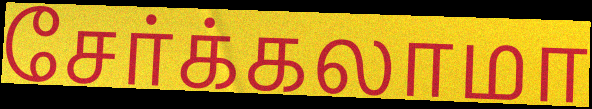
சேர்க்கலாமா